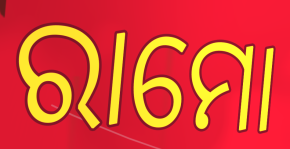
ରାମୋ